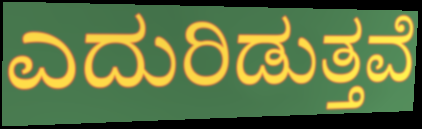
ಎದುರಿಡುತ್ತವೆ